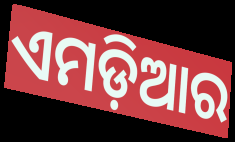
ଏମଡ଼ିଆର